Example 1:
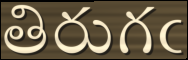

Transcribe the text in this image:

తిరుగఁ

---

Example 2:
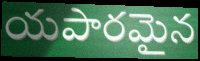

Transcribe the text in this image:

యపారమైన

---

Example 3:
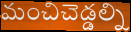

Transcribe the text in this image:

మంచిచెడ్డల్ని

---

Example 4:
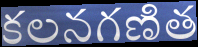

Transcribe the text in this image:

కలనగణిత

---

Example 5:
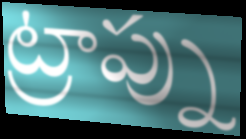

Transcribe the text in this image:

ట్రాప్ను